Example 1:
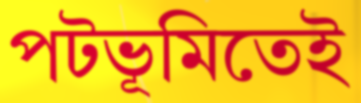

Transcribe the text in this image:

পটভূমিতেই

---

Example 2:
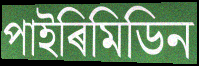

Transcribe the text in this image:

পাইৰিমিডিন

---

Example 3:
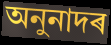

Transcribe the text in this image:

অনুনাদৰ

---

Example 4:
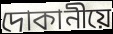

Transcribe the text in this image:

দোকানীয়ে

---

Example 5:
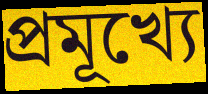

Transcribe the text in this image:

প্ৰমূখ্যে